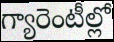
గ్యారెంటీల్లో